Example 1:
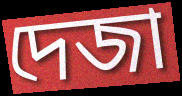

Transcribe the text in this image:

দেজা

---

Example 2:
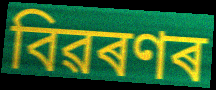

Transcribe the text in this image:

বিৱৰণৰ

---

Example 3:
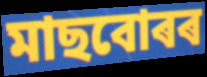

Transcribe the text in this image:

মাছবোৰৰ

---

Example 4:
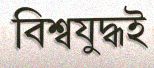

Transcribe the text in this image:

বিশ্বযুদ্ধই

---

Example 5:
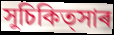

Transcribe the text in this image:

সুচিকিত্সাৰ